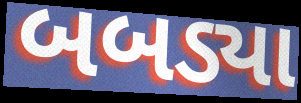
બબડ્યા